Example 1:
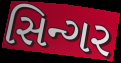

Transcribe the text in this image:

સિન્ગર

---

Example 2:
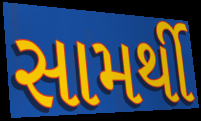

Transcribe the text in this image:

સામર્થી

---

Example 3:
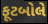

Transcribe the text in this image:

ફૂટબોલે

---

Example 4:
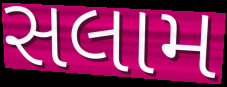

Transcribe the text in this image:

સલામ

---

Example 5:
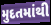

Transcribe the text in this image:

મુદતમાંથી